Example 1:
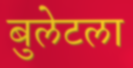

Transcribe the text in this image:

बुलेटला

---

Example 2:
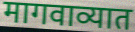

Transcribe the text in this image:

मागवाव्यात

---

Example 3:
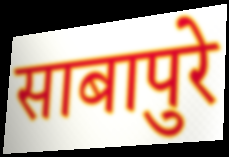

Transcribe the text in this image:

साबापुरे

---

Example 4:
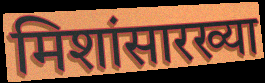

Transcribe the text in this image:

मिशांसारख्या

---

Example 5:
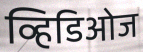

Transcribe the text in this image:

व्हिडिओज